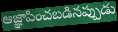
ఆజ్ఞాపించబడినప్పుడు